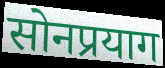
सोनप्रयाग